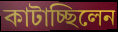
কাটাচ্ছিলেন